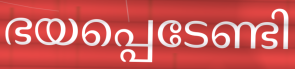
ഭയപ്പെടേണ്ടി